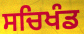
ਸਚਿਖੰਡ